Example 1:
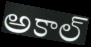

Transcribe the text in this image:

అకాల్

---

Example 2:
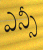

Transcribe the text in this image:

ఎన్సీ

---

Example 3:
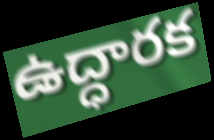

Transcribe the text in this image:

ఉద్ధారక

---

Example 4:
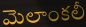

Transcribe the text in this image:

మెలాంకలీ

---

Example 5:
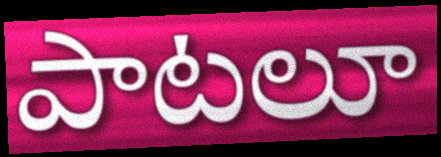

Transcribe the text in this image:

పాటలూ